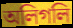
অলিগলি